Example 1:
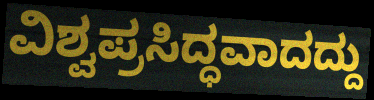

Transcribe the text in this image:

ವಿಶ್ವಪ್ರಸಿದ್ಧವಾದದ್ದು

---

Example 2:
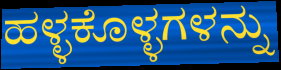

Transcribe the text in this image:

ಹಳ್ಳಕೊಳ್ಳಗಳನ್ನು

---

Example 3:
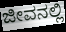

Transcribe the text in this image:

ಜೀವನಲ್ಲಿ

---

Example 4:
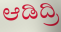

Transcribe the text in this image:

ಆಡಿದ್ರಿ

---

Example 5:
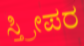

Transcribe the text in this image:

ಸ್ತ್ರೀಪರ